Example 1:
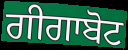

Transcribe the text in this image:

ਗੀਗਾਬੋਟ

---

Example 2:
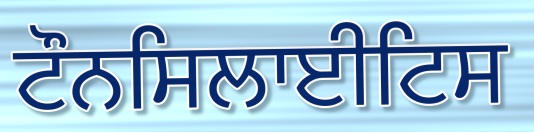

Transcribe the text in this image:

ਟੌਨਸਿਲਾਈਟਿਸ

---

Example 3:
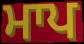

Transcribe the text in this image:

ਮਾਪ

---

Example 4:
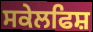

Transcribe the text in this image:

ਸਕੇਲਫਿਸ਼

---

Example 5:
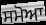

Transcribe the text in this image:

ਸਮੋਆ